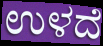
ಉಳದೆ